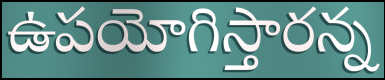
ఉపయోగిస్తారన్న